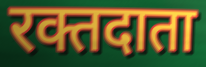
रक्तदाता